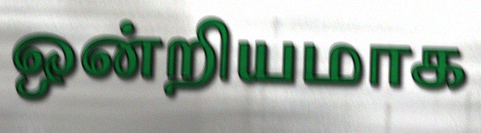
ஒன்றியமாக